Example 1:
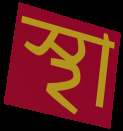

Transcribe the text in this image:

স্থা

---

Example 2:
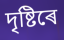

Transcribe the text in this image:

দৃষ্টিৰে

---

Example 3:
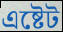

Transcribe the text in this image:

এষ্টেট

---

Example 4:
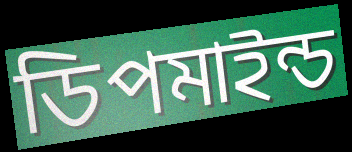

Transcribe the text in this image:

ডিপমাইন্ড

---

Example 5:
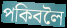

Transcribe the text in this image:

পকিবলৈ